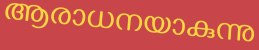
ആരാധനയാകുന്നു